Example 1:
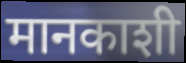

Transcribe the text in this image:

मानकाशी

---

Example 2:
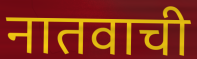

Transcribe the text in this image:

नातवाची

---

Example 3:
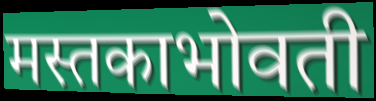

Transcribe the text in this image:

मस्तकाभोवती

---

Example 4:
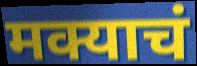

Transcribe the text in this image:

मक्याचं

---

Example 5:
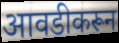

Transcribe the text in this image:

आवडीकरून